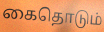
கைதொடும்